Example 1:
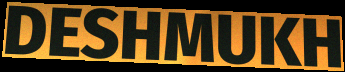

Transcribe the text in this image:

DESHMUKH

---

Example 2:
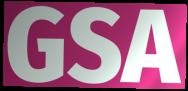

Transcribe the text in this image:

GSA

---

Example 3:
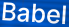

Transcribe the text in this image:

Babel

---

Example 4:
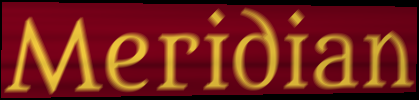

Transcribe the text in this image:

Meridian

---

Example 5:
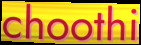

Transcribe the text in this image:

choothi